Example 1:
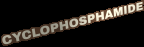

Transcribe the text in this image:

CYCLOPHOSPHAMIDE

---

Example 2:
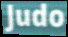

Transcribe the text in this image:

Judo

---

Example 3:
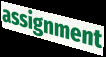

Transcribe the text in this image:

assignment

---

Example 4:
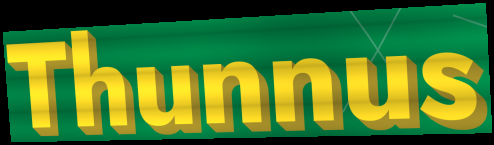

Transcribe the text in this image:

Thunnus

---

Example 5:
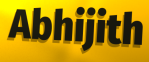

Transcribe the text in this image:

Abhijith